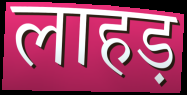
लाहड़